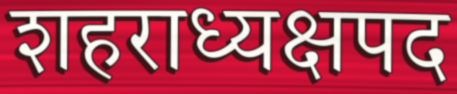
शहराध्यक्षपद